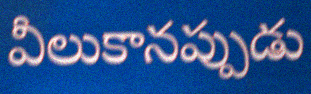
వీలుకానప్పుడు